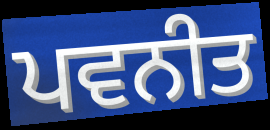
ਪਵਨੀਤ